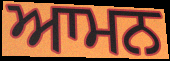
ਆਮਨ